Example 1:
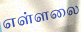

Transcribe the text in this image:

எள்ளலை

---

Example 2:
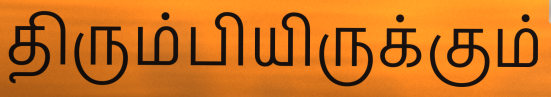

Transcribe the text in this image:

திரும்பியிருக்கும்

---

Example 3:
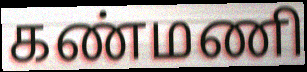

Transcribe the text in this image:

கண்மணி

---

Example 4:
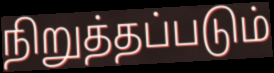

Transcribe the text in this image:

நிறுத்தப்படும்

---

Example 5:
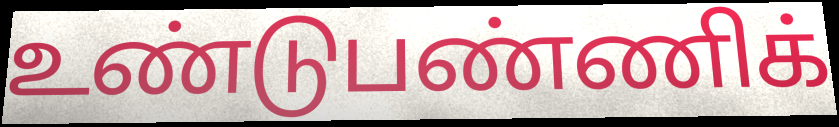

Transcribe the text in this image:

உண்டுபண்ணிக்